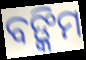
ବଙ୍କିମ